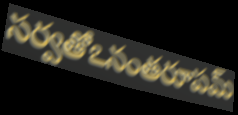
సర్వతోఽనంతరూపమ్